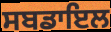
ਸਬਡਾਇਲ